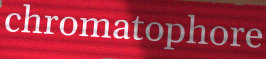
chromatophore